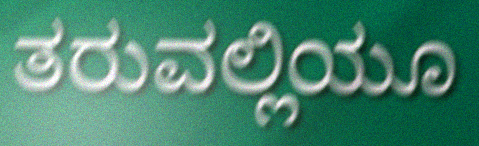
ತರುವಲ್ಲಿಯೂ